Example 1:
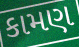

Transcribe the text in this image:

કામણ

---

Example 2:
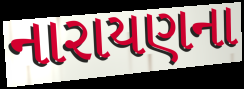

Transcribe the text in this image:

નારાયણના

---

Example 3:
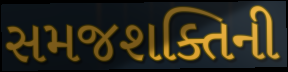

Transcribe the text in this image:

સમજશક્તિની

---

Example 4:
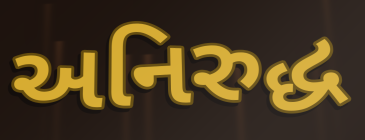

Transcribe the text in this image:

અનિરુદ્ધ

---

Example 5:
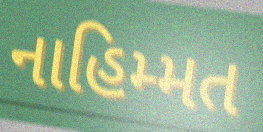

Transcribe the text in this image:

નાહિમ્મત